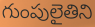
గుంపులైతిని